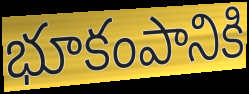
భూకంపానికి